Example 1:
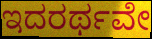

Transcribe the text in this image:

ಇದರರ್ಥವೇ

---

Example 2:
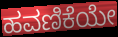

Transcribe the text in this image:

ಹವಣಿಕೆಯೇ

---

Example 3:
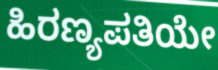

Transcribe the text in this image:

ಹಿರಣ್ಯಪತಿಯೇ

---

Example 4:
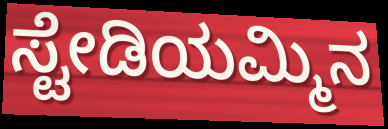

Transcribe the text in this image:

ಸ್ಟೇಡಿಯಮ್ಮಿನ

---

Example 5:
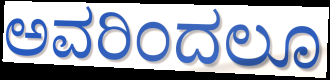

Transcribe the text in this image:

ಅವರಿಂದಲೂ